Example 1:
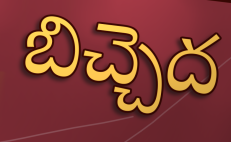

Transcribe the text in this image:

బిచ్చెద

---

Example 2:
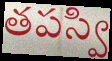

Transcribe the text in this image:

తపస్వి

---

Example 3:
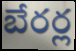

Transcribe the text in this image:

బేరర్ల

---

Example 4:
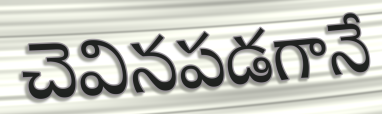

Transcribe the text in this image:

చెవినపడగానే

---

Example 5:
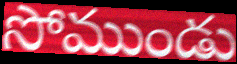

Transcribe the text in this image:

సోముండు